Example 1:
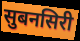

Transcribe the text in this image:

सुबनसिरी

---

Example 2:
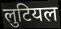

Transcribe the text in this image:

लुटियल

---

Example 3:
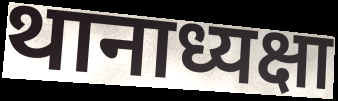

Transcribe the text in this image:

थानाध्यक्षा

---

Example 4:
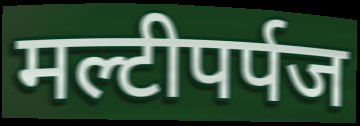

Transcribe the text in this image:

मल्टीपर्पज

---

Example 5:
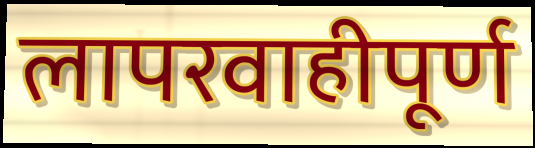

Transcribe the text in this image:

लापरवाहीपूर्ण